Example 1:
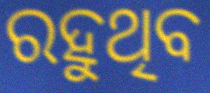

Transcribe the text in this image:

ରହୁଥିବ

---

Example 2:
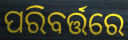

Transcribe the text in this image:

ପରିବର୍ତ୍ତରେ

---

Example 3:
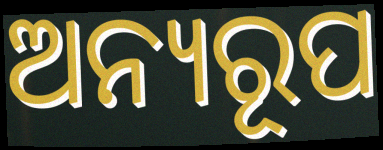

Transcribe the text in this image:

ଅନ୍ୟରୂପ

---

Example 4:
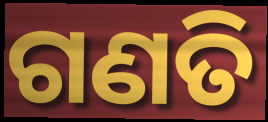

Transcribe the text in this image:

ଗଣତି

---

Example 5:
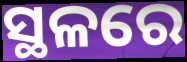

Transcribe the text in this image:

ସ୍ଥଳରେ